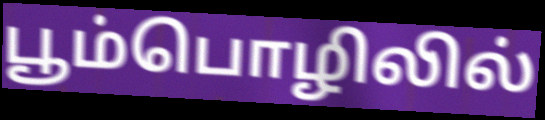
பூம்பொழிலில்